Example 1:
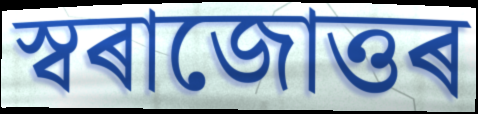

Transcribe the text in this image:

স্বৰাজোত্তৰ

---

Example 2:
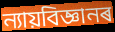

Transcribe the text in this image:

ন্যায়বিজ্ঞানৰ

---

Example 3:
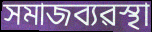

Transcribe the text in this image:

সমাজব্যৱস্থা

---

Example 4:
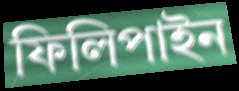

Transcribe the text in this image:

ফিলিপাইন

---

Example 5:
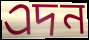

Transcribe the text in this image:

এদন